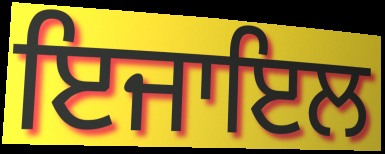
ਇਜਾਇਲ